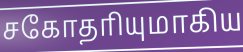
சகோதரியுமாகிய